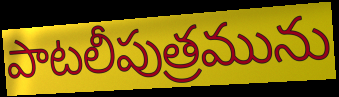
పాటలీపుత్రమును